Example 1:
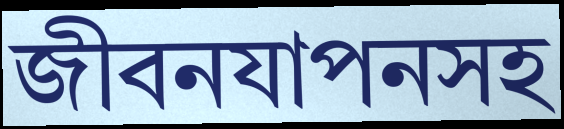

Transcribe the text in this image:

জীবনযাপনসহ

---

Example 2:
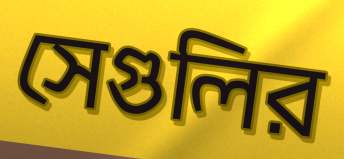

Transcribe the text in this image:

সেগুলির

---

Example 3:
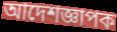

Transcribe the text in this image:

আদেশজ্ঞাপক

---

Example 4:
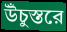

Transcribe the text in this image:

উঁচুস্তরে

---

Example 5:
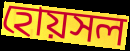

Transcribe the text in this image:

হোয়সল